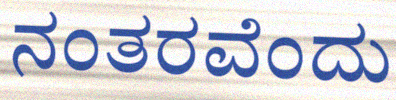
ನಂತರವೆಂದು